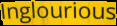
Inglourious